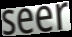
seer